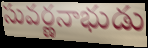
సువర్ణనాభుడు